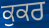
ਕੁਕਰ